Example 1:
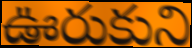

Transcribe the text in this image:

ఊరుకుని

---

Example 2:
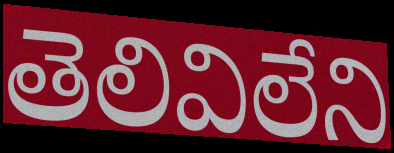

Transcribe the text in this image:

తెలివిలేని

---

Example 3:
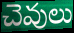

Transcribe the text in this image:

చెవులు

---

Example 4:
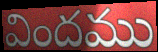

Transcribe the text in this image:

విందము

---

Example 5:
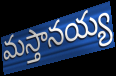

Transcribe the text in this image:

మస్తానయ్య